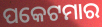
ପକେଟମାର